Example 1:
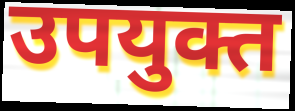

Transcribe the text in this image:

उपयुक्त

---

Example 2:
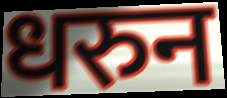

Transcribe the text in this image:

धरुन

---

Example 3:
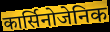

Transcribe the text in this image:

कार्सिनोजेनिक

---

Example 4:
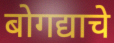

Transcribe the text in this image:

बोगद्याचे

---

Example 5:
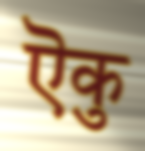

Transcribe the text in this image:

ऎकु